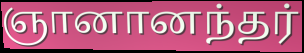
ஞானானந்தர்